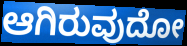
ಆಗಿರುವುದೋ